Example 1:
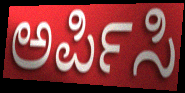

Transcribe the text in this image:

ಅರ್ಪಿಸಿ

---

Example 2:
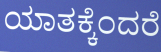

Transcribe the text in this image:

ಯಾತಕ್ಕೆಂದರೆ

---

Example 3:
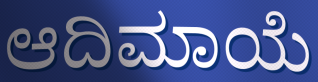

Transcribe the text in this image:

ಆದಿಮಾಯೆ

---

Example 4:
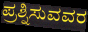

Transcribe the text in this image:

ಪ್ರಶ್ನಿಸುವವರ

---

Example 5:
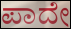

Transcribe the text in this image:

ಪಾದೇ